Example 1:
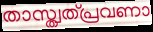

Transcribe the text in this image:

താസ്ത്വത്പ്രവണാ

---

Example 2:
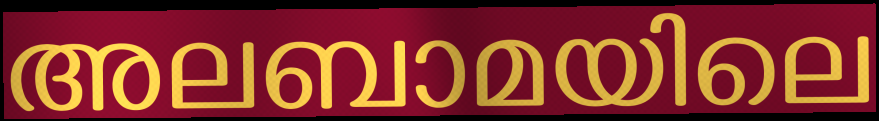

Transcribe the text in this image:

അലബാമയിലെ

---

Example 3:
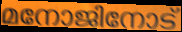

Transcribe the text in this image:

മനോജിനോട്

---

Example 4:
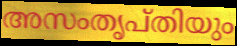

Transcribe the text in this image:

അസംതൃപ്തിയും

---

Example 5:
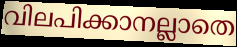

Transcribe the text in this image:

വിലപിക്കാനല്ലാതെ